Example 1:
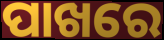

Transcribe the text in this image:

ପାଖରେ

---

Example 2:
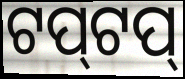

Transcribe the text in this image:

ଟପ୍‌ଟପ୍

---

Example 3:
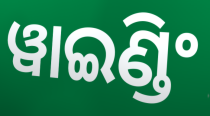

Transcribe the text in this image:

ୱାଇଣ୍ଡିଂ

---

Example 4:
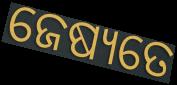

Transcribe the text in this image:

ଜେଷ୍ୟତେ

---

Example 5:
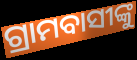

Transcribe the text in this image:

ଗ୍ରାମବାସୀଙ୍କୁ